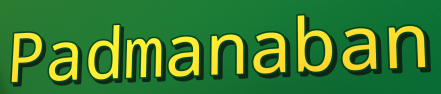
Padmanaban